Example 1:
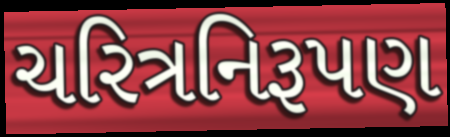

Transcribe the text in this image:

ચરિત્રનિરૂપણ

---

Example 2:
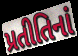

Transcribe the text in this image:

પ્રતીતિનાં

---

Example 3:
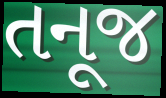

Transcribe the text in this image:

તનૂજ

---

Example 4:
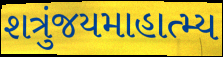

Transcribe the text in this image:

શત્રુંજયમાહાત્મ્ય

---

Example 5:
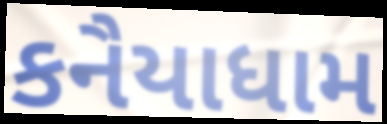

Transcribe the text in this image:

કનૈયાધામ